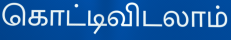
கொட்டிவிடலாம்